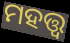
ମହତ୍ତ୍ବ